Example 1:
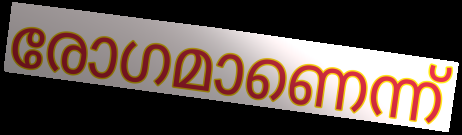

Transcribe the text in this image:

രോഗമാണെന്ന്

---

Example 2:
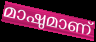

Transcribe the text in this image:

മാഷുമാണ്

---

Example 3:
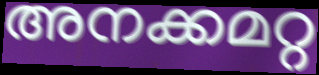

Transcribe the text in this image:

അനക്കമറ്റ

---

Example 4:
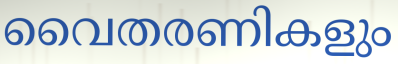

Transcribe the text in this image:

വൈതരണികളും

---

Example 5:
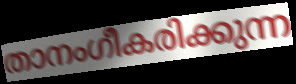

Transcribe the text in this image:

താനംഗീകരിക്കുന്ന